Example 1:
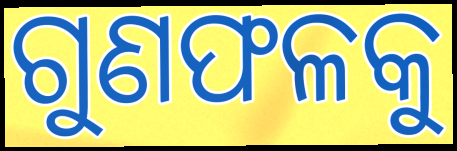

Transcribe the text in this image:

ଗୁଣଫଳକୁ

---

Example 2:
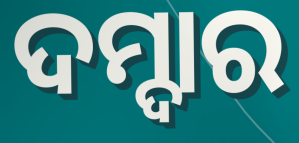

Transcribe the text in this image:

ଦମ୍ଦାର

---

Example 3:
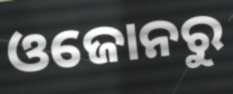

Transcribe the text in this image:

ଓଜୋନରୁ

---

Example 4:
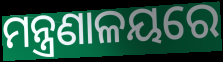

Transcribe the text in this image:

ମନ୍ତ୍ରଣାଳୟରେ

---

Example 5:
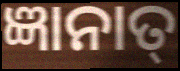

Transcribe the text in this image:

ଜ୍ଞାନାତ୍